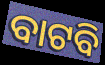
ବାଟବି